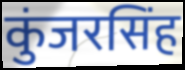
कुंजरसिंह